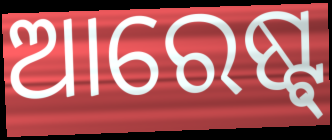
ଆରେଷ୍ଟ୍